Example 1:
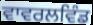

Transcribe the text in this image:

ਵਾਵਰਲਵਿੰਡ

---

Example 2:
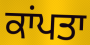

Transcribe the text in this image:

ਕਾਂਪਤਾ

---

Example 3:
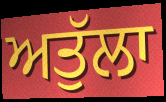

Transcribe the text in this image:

ਅਤੁੱਲਾ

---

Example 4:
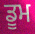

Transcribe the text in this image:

ਡੂਮ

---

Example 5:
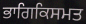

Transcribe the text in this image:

ਭਾਗਿਕਿਸਮਤ